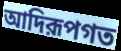
আদিরূপগত